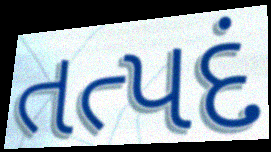
તત્પદં